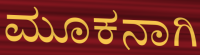
ಮೂಕನಾಗಿ